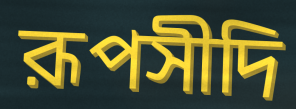
রূপসীদি